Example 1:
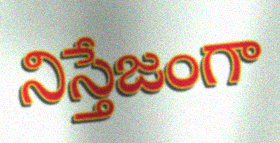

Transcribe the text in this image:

నిస్తేజంగా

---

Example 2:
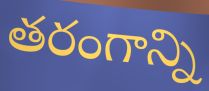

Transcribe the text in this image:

తరంగాన్ని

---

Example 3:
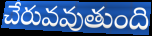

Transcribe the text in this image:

చేరువవుతుంది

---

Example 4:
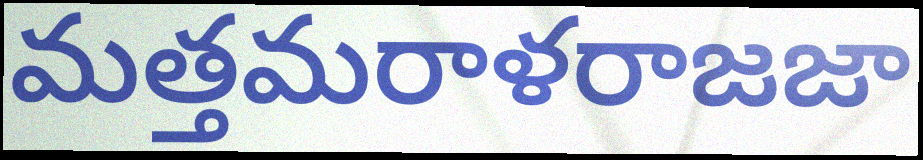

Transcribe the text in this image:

మత్తమరాళరాజజా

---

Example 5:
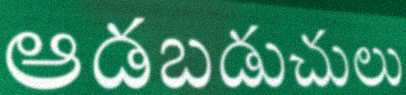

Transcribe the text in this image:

ఆడబడుచులు